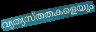
വ്യത്യസ്തതകളെയും